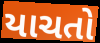
યાચતો